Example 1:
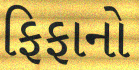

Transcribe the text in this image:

ફિફાનો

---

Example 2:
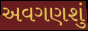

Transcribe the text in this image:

અવગણશું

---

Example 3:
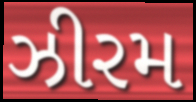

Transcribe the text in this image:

ઝીરમ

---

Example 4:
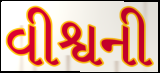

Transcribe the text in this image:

વીશ્વની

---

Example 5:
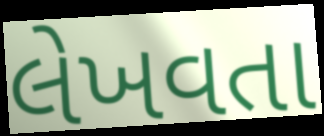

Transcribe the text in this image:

લેખવતા